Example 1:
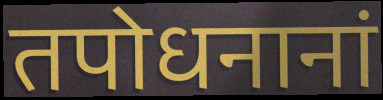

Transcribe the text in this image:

तपोधनानां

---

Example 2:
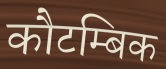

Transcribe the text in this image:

कौटम्बिक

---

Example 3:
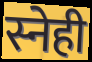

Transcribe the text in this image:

स्नेही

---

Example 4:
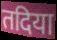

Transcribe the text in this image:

तदिया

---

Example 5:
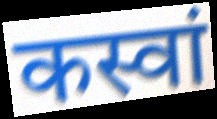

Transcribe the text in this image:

कस्वां